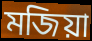
মজিয়া